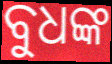
ବୁଧଙ୍କ